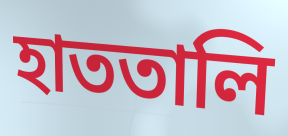
হাততালি